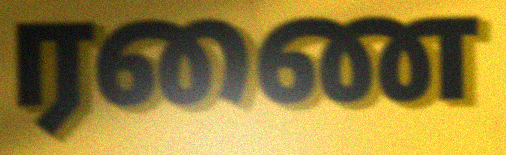
ரணை